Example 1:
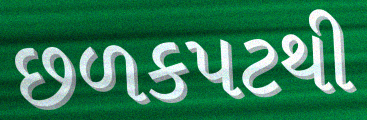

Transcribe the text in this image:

છળકપટથી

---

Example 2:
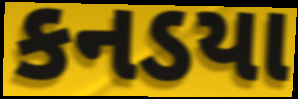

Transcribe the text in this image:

કનડયા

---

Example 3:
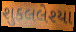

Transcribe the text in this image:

શુકલલેશ્યા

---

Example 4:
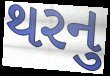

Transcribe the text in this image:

થરનુ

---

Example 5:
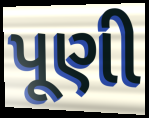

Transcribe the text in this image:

પૂણી